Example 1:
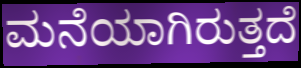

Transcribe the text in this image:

ಮನೆಯಾಗಿರುತ್ತದೆ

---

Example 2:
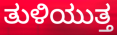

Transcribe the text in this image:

ತುಳಿಯುತ್ತ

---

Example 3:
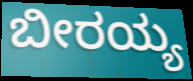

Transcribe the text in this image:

ಬೀರಯ್ಯ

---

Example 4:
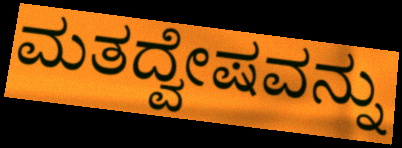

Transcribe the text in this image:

ಮತದ್ವೇಷವನ್ನು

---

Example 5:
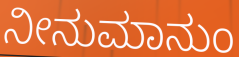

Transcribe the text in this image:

ನೀನುಮಾನುಂ